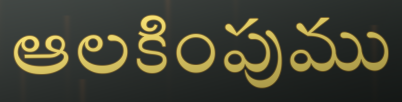
ఆలకింపుము